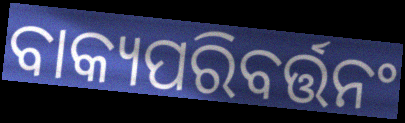
ବାକ୍ୟପରିବର୍ତ୍ତନଂ